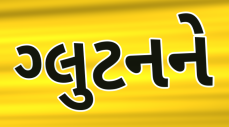
ગ્લુટનને